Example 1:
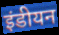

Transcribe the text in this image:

इंडीयन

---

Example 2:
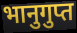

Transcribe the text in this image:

भानुगुप्त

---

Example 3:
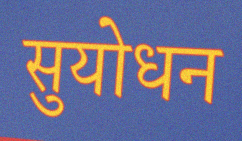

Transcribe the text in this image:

सुयोधन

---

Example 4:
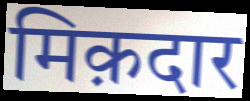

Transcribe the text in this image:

मिक़दार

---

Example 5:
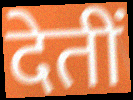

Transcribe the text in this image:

देतीं